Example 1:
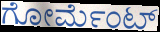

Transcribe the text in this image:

ಗೋರ್ಮೆಂಟ್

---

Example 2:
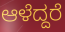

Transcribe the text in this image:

ಆಳೆದ್ದರೆ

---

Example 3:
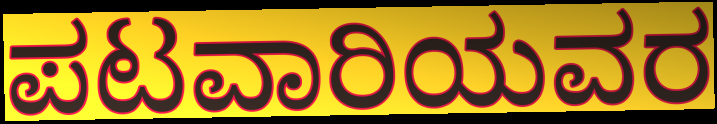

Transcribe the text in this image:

ಪಟವಾರಿಯವರ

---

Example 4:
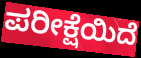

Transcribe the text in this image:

ಪರೀಕ್ಷೆಯಿದೆ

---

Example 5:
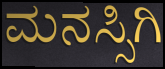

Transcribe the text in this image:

ಮನಸ್ಸಿಗಿ